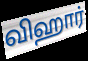
விஹார்